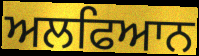
ਅਲਫਿਆਨ